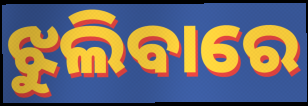
ଝୁଲିବାରେ